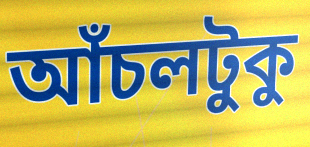
আঁচলটুকু